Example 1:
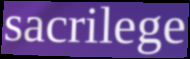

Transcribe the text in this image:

sacrilege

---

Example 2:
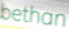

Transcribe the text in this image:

bethan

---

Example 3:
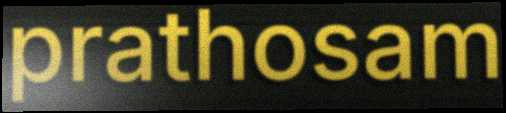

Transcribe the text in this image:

prathosam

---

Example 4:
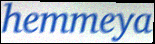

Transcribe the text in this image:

hemmeya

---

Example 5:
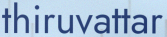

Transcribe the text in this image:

thiruvattar